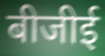
बीजीई